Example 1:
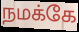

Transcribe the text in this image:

நமக்கே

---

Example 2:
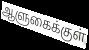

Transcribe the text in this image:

ஆளுகைக்குள்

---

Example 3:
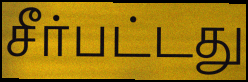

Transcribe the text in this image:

சீர்பட்டது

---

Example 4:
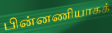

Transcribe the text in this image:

பின்னணியாகக்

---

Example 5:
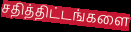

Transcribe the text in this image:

சதித்திட்டங்களை